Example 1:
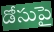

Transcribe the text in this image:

డోసుపై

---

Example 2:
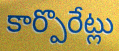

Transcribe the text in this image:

కార్పొరేట్లు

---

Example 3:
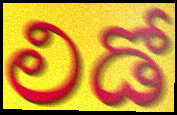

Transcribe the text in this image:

లిడో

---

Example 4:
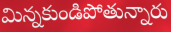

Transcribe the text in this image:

మిన్నకుండిపోతున్నారు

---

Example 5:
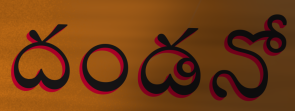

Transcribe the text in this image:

దండనో